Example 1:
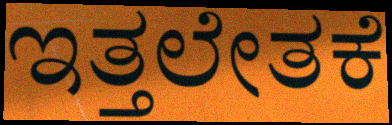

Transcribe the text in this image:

ಇತ್ತಲೇತಕೆ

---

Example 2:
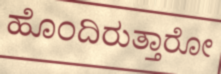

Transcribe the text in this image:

ಹೊಂದಿರುತ್ತಾರೋ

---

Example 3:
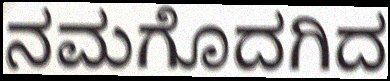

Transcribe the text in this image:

ನಮಗೊದಗಿದ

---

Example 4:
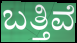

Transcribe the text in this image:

ಬತ್ತಿವೆ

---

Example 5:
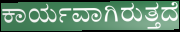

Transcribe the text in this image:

ಕಾರ್ಯವಾಗಿರುತ್ತದೆ